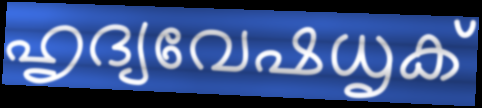
ഹൃദ്യവേഷധൃക്